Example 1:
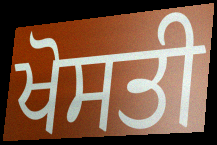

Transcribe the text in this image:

ਖੋਸਤੀ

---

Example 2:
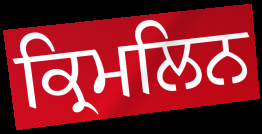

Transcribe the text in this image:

ਕ੍ਰਿਮਲਿਨ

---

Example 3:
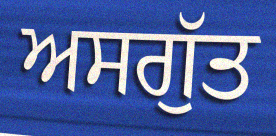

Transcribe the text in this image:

ਅਸਗੁੱਤ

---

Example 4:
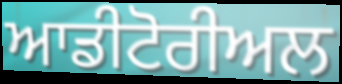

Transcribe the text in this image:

ਆਡੀਟੋਰੀਅਲ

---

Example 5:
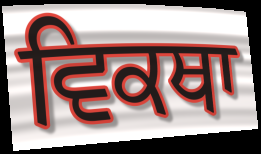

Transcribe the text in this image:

ਵਿਕਥਾ